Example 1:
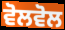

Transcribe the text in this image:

ਵੋਲਵੋਲ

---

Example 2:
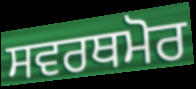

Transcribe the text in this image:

ਸਵਰਥਮੋਰ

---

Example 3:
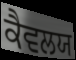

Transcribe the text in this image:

ਕੈਵਲਯ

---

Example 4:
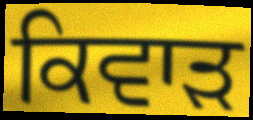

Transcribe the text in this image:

ਕਿਵਾੜ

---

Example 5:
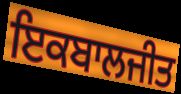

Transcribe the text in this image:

ਇਕਬਾਲਜੀਤ